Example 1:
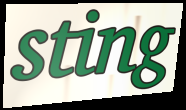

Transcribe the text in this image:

sting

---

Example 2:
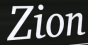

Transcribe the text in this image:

Zion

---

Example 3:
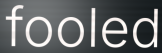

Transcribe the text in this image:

fooled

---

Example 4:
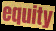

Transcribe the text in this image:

equity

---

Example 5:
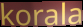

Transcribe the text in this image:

korala